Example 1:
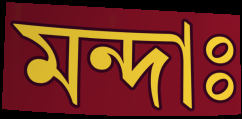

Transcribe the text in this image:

মন্দাঃ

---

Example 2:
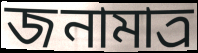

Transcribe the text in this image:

জনামাত্র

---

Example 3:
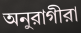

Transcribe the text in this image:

অনুরাগীরা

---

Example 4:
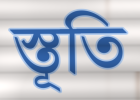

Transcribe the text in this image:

স্তূতি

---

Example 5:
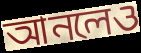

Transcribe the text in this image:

আনলেও